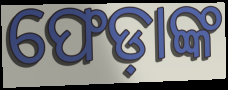
ଫେଡ଼ାଙ୍କ